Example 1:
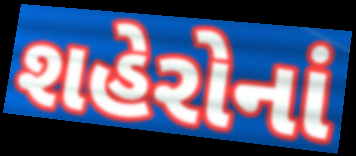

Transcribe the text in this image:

શહેરોનાં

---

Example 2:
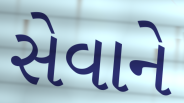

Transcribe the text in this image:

સેવાને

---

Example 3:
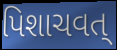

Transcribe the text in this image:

પિશાચવત્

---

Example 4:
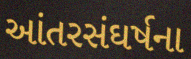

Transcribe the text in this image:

આંતરસંઘર્ષના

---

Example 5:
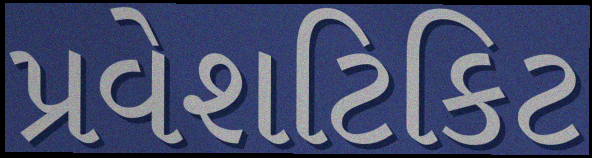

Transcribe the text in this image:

પ્રવેશટિકિટ